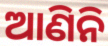
ଆଣିନି